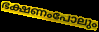
ഭക്ഷണംപോലും